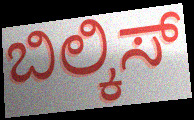
ಬಿಲ್ಕಿಸ್